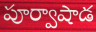
పూర్వాషాడ